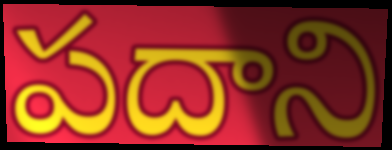
పదాని